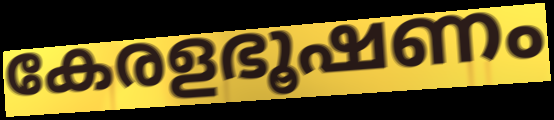
കേരളഭൂഷണം